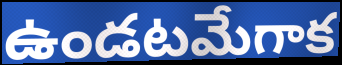
ఉండటమేగాక